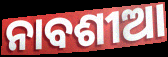
ନାବଶୀଆ